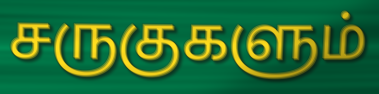
சருகுகளும்